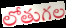
లోతుగల